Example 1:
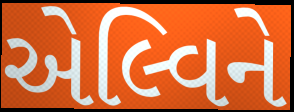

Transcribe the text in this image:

એલ્વિને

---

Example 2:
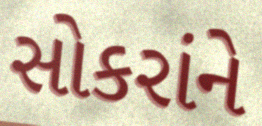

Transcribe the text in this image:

સોકરાંને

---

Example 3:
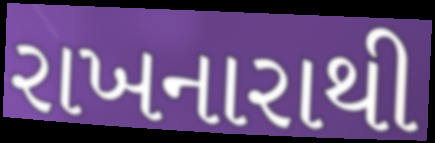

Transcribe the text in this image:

રાખનારાથી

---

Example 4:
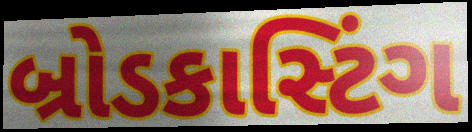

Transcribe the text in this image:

બ્રોડકાસ્ટિંગ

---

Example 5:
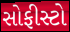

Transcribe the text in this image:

સોફીસ્ટો